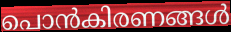
പൊൻകിരണങ്ങൾ